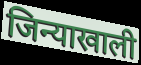
जिन्याखाली